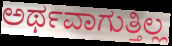
ಅರ್ಥವಾಗುತ್ತಿಲ್ಲ